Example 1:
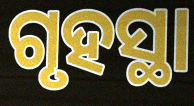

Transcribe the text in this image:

ଗୃହସ୍ଥା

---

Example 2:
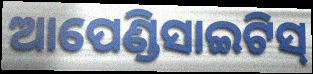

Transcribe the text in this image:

ଆପେଣ୍ଡିସାଇଟିସ୍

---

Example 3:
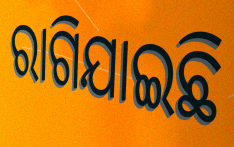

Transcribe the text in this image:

ରାଗିଯାଇଛି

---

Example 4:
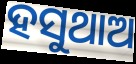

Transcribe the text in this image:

ହସୁଥାଅ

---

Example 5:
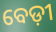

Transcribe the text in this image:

ବେଡ଼ୀ